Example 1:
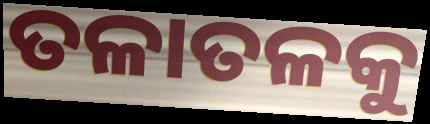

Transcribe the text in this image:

ତଳାତଳକୁ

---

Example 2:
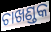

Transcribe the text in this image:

ଚାଖଣ୍ଡକ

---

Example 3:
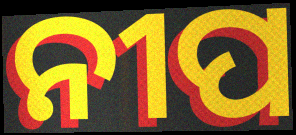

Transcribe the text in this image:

ନୀପ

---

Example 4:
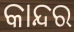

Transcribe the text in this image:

କାନ୍ଦର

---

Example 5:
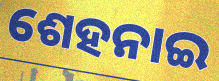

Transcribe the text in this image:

ଶେହନାଇ